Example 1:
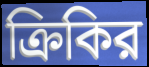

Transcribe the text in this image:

ক্রিকির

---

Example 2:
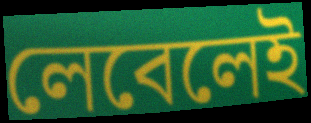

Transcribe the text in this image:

লেবেলেই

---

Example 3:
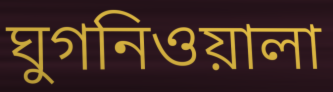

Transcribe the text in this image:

ঘুগনিওয়ালা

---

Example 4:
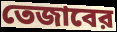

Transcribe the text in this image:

তেজাবের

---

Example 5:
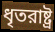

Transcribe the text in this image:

ধৃতরাষ্ট্র